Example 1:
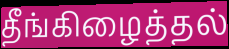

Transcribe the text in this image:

தீங்கிழைத்தல்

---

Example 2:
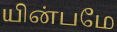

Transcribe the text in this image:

யின்பமே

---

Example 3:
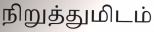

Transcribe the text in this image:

நிறுத்துமிடம்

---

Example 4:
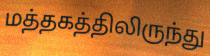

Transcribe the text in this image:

மத்தகத்திலிருந்து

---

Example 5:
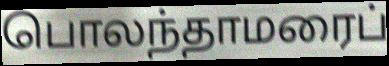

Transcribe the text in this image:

பொலந்தாமரைப்